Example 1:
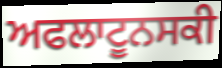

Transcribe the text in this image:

ਅਫਲਾਟੂਨਸਕੀ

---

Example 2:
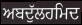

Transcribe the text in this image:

ਅਬਦੁੱਲਹਮਿਦ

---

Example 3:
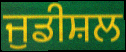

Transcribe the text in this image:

ਜੁਡੀਸ਼ਲ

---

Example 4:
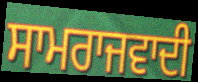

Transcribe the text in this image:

ਸਾਮਰਾਜਵਾਦੀ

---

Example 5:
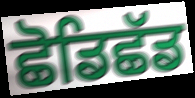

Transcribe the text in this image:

ਛੋਡਿਛੱਡ